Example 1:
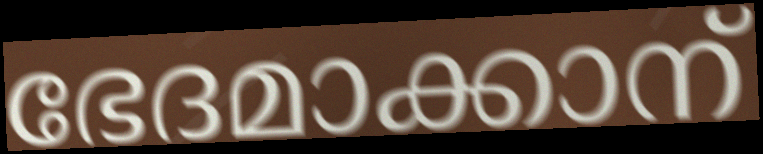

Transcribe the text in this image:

ഭേദമാക്കാന്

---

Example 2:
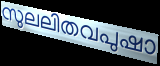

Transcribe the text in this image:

സുലലിതവപുഷാ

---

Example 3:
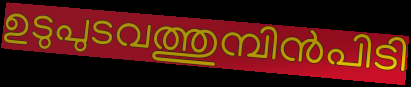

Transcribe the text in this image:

ഉടുപുടവത്തുമ്പിൻപിടി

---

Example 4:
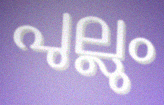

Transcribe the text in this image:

പുല്ലും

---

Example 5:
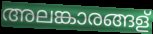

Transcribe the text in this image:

അലങ്കാരങ്ങള്